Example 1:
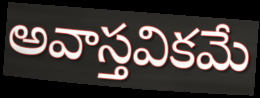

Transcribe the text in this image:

అవాస్తవికమే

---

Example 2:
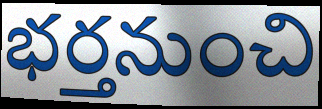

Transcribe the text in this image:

భర్తనుంచి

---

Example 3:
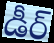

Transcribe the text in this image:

డీర్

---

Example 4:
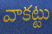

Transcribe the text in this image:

వాకట్టు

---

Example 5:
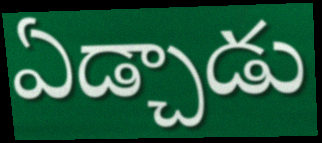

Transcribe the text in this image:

ఏడ్చాడు